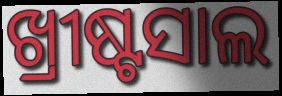
ଖ୍ରୀଷ୍ଟସାଲ